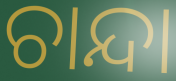
ଚାନ୍ଦା